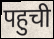
पहुची